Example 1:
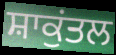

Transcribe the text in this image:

ਸ਼ਾਕੁਂਤਲ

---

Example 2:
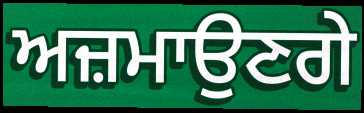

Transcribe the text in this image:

ਅਜ਼ਮਾਉਣਗੇ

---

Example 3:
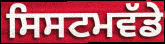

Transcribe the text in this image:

ਸਿਸਟਮਵੱਡੇ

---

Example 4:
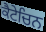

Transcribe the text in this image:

ਕੈਟੇਚਿਨ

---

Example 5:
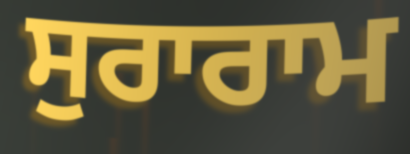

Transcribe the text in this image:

ਸੁਰਾਰਾਮ